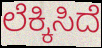
ಲೆಕ್ಕಿಸಿದೆ